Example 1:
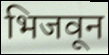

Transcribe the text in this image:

भिजवून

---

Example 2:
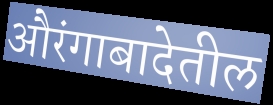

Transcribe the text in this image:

औरंगाबादेतील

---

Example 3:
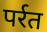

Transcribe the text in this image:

पर्रत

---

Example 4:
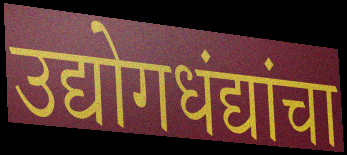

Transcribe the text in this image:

उद्योगधंद्यांचा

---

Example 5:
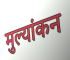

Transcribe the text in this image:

मुल्यांकन